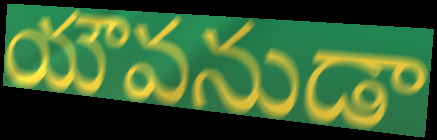
యౌవనుడా